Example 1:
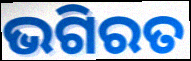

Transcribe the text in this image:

ଭଗିରତ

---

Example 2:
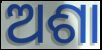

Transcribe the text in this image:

ଅଶା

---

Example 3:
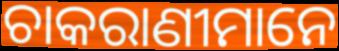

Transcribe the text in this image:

ଚାକରାଣୀମାନେ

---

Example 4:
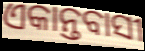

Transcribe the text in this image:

ଏକାନ୍ତବାସୀ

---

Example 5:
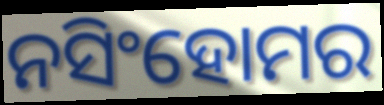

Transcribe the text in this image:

ନସିଂହୋମର